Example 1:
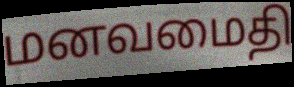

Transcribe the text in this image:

மனவமைதி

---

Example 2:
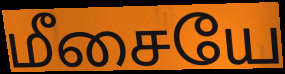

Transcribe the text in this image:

மீசையே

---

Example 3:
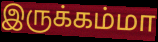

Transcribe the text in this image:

இருக்கம்மா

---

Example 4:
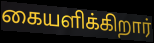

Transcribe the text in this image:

கையளிக்கிறார்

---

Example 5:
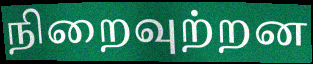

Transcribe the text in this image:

நிறைவுற்றன